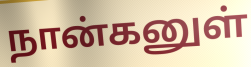
நான்கனுள்